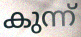
കുന്ന്